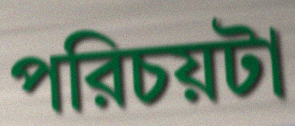
পরিচয়টা